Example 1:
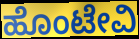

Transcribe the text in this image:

ಹೊಂಟೇವಿ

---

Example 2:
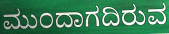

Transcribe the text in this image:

ಮುಂದಾಗದಿರುವ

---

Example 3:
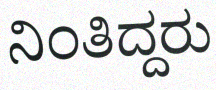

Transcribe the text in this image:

ನಿಂತಿದ್ದರು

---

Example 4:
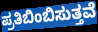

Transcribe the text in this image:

ಪ್ರತಿಬಿಂಬಿಸುತ್ತವೆ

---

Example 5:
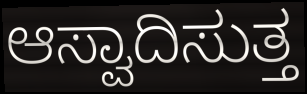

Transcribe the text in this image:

ಆಸ್ವಾದಿಸುತ್ತ